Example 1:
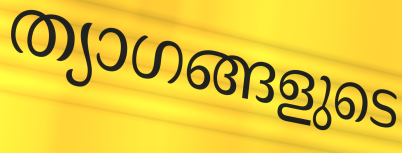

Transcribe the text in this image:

ത്യാഗങ്ങളുടെ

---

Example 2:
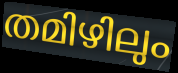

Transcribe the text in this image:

തമിഴിലും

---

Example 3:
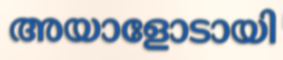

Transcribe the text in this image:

അയാളോടായി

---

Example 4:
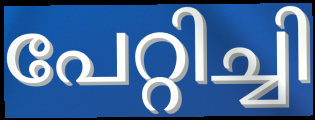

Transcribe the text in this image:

പേറ്റിച്ചി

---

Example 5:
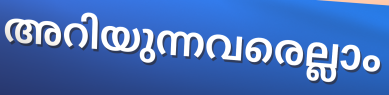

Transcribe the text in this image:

അറിയുന്നവരെല്ലാം